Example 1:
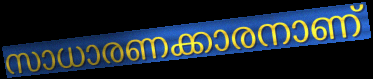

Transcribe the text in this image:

സാധാരണക്കാരനാണ്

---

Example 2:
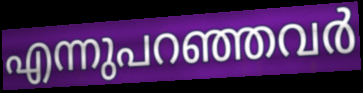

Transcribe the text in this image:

എന്നുപറഞ്ഞവർ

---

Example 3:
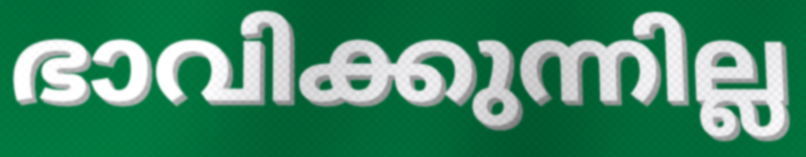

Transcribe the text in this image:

ഭാവിക്കുന്നില്ല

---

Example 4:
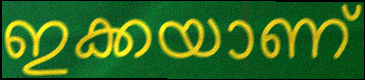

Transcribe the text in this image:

ഇക്കയാണ്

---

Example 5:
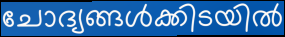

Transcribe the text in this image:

ചോദ്യങ്ങൾക്കിടയിൽ